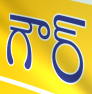
గౌర్